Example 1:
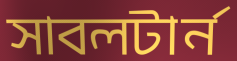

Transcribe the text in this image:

সাবলটার্ন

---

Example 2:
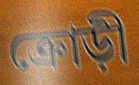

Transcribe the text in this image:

ক্রোড়ী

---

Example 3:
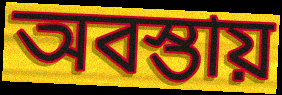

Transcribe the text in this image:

অবস্তায়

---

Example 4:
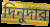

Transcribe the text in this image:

দিনুদার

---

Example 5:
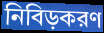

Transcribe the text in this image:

নিবিড়করণ